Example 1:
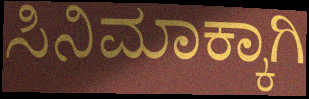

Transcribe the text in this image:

ಸಿನಿಮಾಕ್ಕಾಗಿ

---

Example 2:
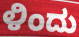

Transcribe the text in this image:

ಳಿಂದು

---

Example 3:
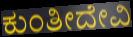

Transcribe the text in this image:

ಕುಂತೀದೇವಿ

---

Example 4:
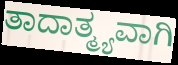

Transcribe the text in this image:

ತಾದಾತ್ಮ್ಯವಾಗಿ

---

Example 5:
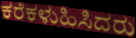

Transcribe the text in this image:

ಕರೆಕಳುಹಿಸಿದರು